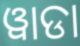
ୱାଡା